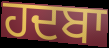
ਹਦਬਾ